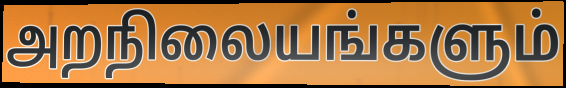
அறநிலையங்களும்